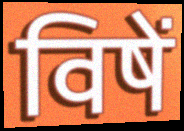
विषें